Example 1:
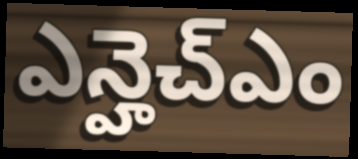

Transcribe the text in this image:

ఎన్హెచ్ఎం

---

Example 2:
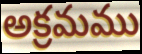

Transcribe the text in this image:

అక్రమము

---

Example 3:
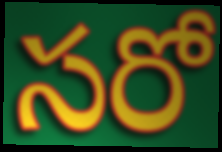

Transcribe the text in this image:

సరో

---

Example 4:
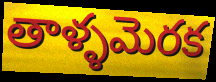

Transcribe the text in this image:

తాళ్ళమెరక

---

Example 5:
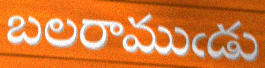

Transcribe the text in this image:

బలరాముఁడు